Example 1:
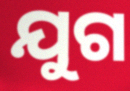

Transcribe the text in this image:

ଯୁଗ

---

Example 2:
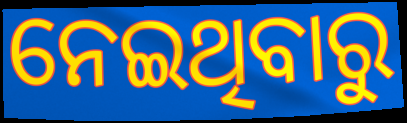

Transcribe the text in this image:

ନେଇଥିବାରୁ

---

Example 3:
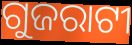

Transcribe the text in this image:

ଗୁଜରାଟୀ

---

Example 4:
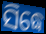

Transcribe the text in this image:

ସିଦ୍ଧେ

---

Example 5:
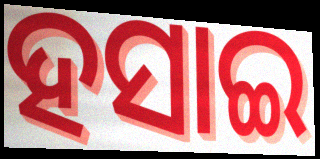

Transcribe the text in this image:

ହସାଇ